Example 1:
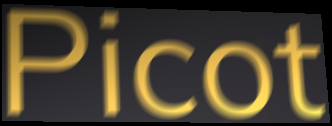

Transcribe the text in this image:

Picot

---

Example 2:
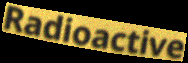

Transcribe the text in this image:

Radioactive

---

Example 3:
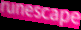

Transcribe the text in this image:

runescape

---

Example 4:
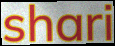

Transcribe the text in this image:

shari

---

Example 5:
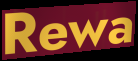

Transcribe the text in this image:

Rewa